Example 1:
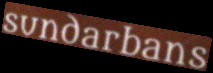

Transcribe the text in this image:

sundarbans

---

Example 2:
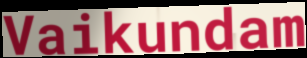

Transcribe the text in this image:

Vaikundam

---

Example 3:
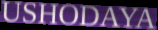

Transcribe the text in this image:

USHODAYA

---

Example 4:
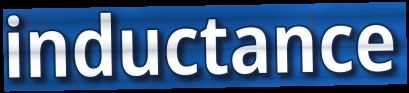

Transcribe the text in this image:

inductance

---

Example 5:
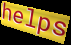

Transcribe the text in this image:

helps